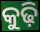
କୁଢ଼ି